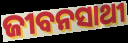
ଜୀବନସାଥୀ